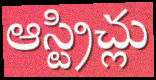
ఆస్ట్రిచ్లు